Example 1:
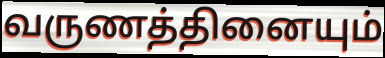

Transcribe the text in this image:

வருணத்தினையும்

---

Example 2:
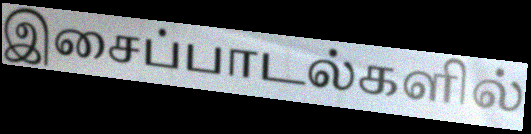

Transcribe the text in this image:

இசைப்பாடல்களில்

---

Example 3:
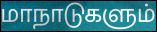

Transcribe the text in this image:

மாநாடுகளும்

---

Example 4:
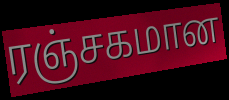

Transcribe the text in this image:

ரஞ்சகமான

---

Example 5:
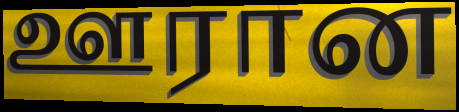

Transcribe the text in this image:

ஊரான